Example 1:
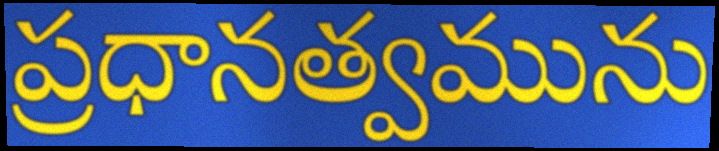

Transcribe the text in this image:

ప్రధానత్వమును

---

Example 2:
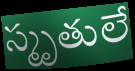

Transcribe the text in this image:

స్మృతులే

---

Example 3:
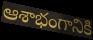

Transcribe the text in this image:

ఆశాభంగానికి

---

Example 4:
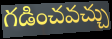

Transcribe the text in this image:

గడించవచ్చు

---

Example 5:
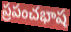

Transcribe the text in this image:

ప్రపంచభాష